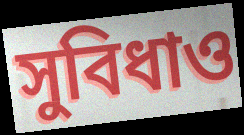
সুবিধাও